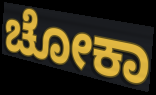
ಚೋಕಾ